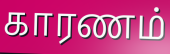
காரணம்